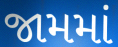
જામમાં